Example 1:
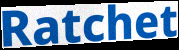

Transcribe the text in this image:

Ratchet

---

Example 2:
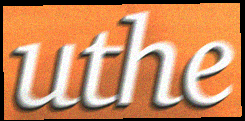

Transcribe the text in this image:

uthe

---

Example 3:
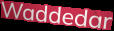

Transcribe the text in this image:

Waddedar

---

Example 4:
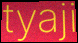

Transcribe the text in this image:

tyaji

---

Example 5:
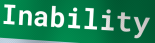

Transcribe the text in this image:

Inability